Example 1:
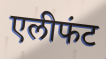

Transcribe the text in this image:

एलीफंट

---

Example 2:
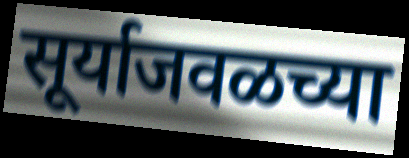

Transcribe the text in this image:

सूर्याजवळच्या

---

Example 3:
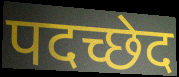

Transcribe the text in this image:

पदच्छेद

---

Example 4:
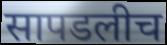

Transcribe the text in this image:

सापडलीच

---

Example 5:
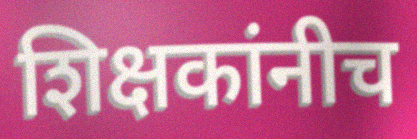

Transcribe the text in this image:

शिक्षकांनीच